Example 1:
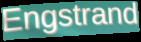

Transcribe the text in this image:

Engstrand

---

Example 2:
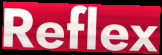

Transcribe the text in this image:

Reflex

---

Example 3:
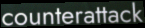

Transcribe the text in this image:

counterattack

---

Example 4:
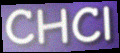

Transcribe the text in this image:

CHCl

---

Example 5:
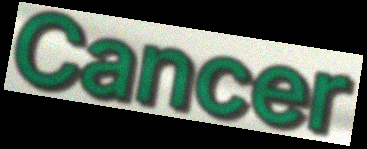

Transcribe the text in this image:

Cancer